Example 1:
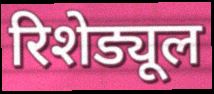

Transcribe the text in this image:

रिशेड्यूल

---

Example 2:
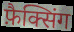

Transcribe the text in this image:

फ़ैक्सिंग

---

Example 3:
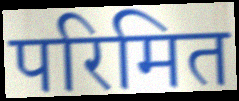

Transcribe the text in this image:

परिमित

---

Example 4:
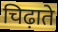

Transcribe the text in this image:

चिढ़ाते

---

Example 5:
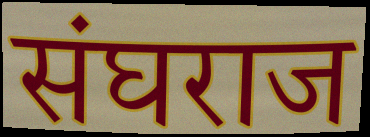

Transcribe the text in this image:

संघराज